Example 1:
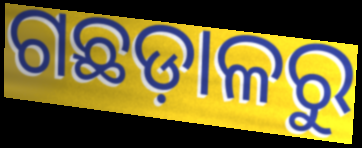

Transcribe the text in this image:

ଗଛଡ଼ାଳରୁ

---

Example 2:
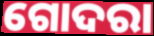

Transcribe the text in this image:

ଗୋଦରା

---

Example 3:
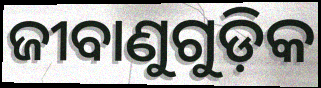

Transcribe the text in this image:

ଜୀବାଣୁଗୁଡ଼ିକ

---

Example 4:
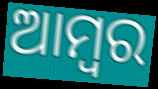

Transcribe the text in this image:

ଆମ୍ବର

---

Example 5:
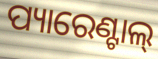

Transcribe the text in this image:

ପ୍ୟାରେଣ୍ଟାଲ୍